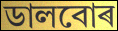
ডালবোৰ